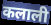
कलाली